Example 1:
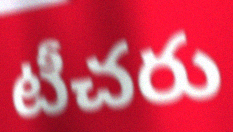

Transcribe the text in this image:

టీచరు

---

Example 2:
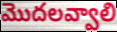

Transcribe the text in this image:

మొదలవ్వాలి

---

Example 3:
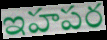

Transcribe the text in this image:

ఇహపర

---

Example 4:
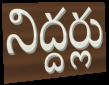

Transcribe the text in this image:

నిద్దర్లు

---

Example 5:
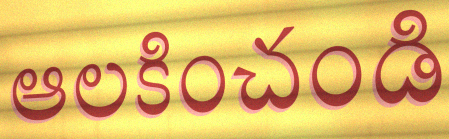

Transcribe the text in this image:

ఆలకించండి